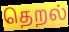
தெறல்